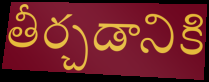
తీర్చడానికి